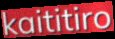
kaititiro